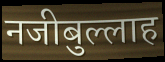
नजीबुल्लाह